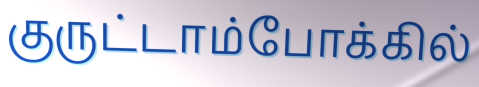
குருட்டாம்போக்கில்